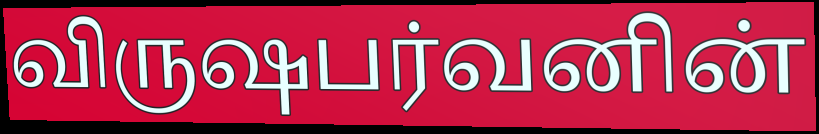
விருஷபர்வனின்